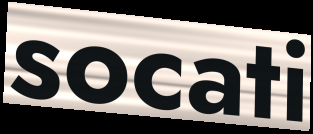
socati